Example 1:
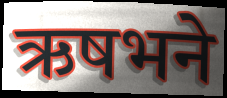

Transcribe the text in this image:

ऋषभने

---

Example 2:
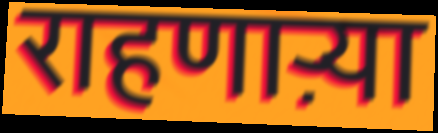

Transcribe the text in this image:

राहणाऱ्‍या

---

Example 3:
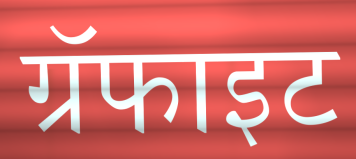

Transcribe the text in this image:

ग्रॅफाइट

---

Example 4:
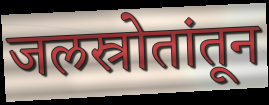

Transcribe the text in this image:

जलस्रोतांतून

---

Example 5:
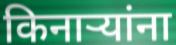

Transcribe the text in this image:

किनाऱ्यांना